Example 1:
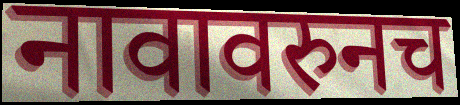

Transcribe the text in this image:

नावावरुनच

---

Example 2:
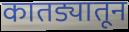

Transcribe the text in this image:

कातड्यातून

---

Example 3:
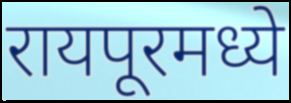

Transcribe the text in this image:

रायपूरमध्ये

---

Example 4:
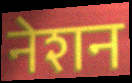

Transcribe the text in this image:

नेशन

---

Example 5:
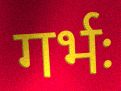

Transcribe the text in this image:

गर्भः